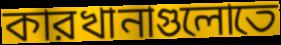
কারখানাগুলোতে